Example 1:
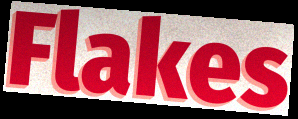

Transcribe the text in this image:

Flakes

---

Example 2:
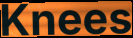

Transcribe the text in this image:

Knees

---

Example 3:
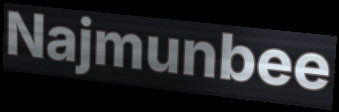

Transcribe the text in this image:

Najmunbee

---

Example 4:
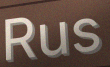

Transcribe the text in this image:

Rus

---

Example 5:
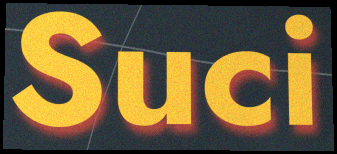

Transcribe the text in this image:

Suci